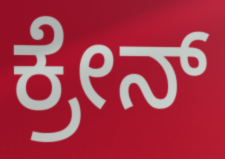
ಕ್ರೇನ್